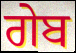
ਗੇਬ